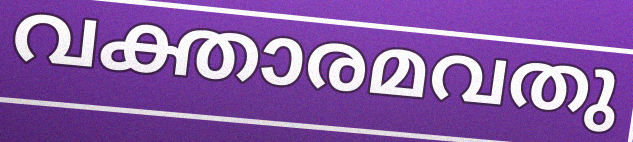
വക്താരമവതു